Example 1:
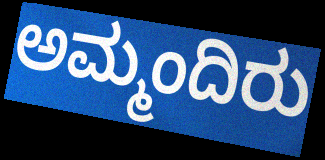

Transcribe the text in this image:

ಅಮ್ಮಂದಿರು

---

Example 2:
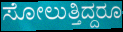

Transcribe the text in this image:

ಸೋಲುತ್ತಿದ್ದರೂ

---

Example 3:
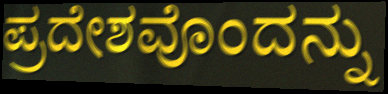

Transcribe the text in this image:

ಪ್ರದೇಶವೊಂದನ್ನು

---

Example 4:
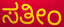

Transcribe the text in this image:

ಸತೀಂ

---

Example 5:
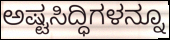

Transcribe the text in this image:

ಅಷ್ಟಸಿದ್ಧಿಗಳನ್ನೂ